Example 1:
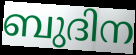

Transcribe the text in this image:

ബുദിന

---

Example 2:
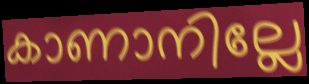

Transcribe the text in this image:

കാണാനില്ലേ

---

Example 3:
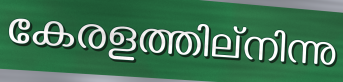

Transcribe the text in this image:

കേരളത്തില്നിന്നു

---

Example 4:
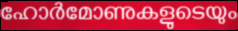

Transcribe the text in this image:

ഹോർമോണുകളുടെയും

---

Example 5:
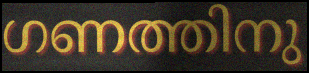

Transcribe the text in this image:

ഗണത്തിനു